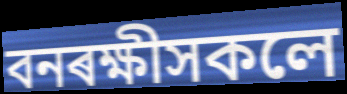
বনৰক্ষীসকলে